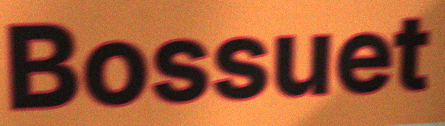
Bossuet